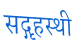
सद्गृहस्थी